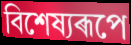
বিশেষ্যৰূপে